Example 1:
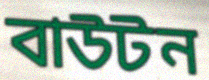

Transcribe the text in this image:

বাউটন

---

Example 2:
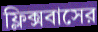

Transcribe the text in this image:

ফ্লিক্সবাসের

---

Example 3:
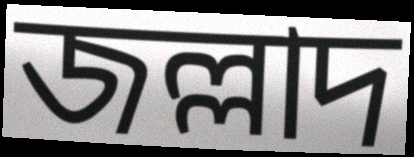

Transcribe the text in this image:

জল্লাদ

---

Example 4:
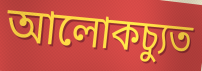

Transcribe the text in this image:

আলোকচ্যুত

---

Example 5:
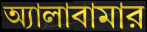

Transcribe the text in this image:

অ্যালাবামার